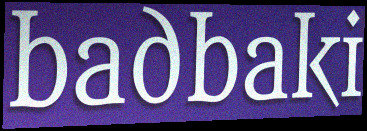
badbaki